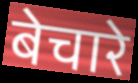
बेचारे